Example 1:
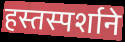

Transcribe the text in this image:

हस्तस्पर्शाने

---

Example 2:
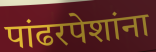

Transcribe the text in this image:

पांढरपेशांना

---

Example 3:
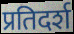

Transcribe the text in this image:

प्रतिदर्श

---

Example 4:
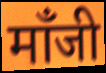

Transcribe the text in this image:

मॉंजी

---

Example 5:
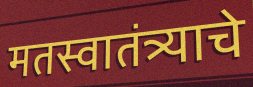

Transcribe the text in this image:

मतस्वातंत्र्याचे